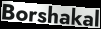
Borshakal